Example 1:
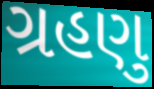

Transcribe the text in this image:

ગ્રહણુ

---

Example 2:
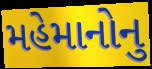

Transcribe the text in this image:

મહેમાનોનુ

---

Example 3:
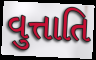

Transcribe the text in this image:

વુત્તાતિ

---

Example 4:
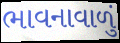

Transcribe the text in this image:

ભાવનાવાળું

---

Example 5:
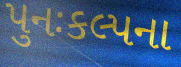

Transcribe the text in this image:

પુનઃકલ્પના